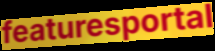
featuresportal